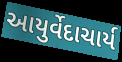
આયુર્વેદાચાર્ય